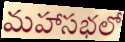
మహాసభలో